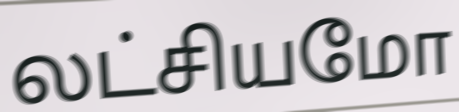
லட்சியமோ